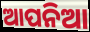
ଆପନିଆ